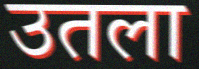
उतला